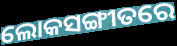
ଲୋକସଙ୍ଗୀତରେ